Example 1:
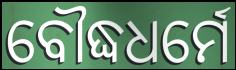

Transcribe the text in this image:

ବୌଦ୍ଧଧର୍ମେ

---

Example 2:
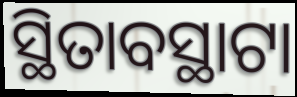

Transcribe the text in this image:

ସ୍ଥିତାବସ୍ଥାଟା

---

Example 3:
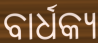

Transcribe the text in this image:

ବାର୍ଧକ୍ୟ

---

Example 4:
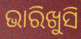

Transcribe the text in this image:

ଭାରିଖୁସି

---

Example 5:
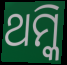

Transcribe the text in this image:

ଥମ୍କି